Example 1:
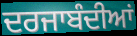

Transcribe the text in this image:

ਦਰਜਾਬੰਦੀਆਂ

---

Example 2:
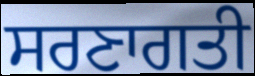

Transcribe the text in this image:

ਸਰਣਾਗਤੀ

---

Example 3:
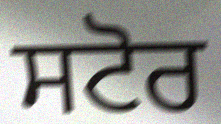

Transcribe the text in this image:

ਸਟੋਰ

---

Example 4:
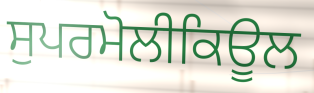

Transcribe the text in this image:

ਸੁਪਰਮੋਲੀਕਿਊਲ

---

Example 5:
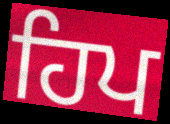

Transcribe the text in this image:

ਹਿਪ